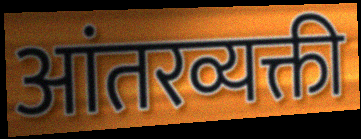
आंतरव्यक्ती